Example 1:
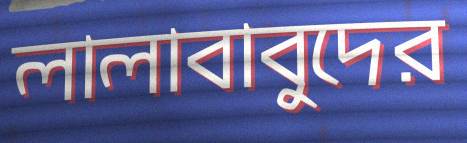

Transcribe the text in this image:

লালাবাবুদের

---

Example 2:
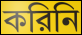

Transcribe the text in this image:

করিনি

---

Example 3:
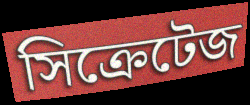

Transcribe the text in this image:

সিক্রেটেজ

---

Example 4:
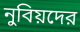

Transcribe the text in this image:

নুবিয়দের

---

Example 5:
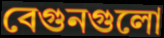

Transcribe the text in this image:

বেগুনগুলো